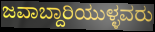
ಜವಾಬ್ದಾರಿಯುಳ್ಳವರು